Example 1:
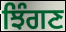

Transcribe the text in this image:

ਝਿੰਗਣ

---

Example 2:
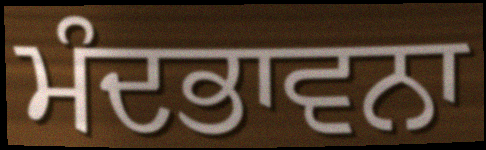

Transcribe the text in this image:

ਮੰਦਭਾਵਨਾ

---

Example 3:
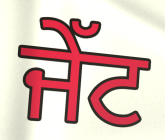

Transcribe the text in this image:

ਜੇੱਟ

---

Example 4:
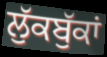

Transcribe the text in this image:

ਲੁੱਕਬੁੱਕਾਂ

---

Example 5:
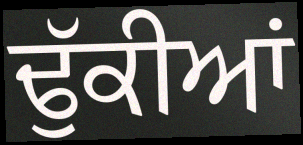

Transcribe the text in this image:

ਢੁੱਕੀਆਂ